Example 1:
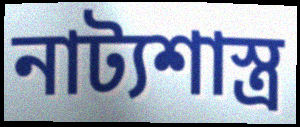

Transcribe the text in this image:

নাট্যশাস্ত্ৰ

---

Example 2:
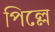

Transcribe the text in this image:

পিল্লে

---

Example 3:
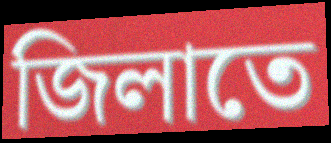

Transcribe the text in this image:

জিলাতে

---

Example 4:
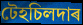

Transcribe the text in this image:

টেহচিলদাৰ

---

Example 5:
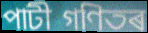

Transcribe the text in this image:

পাটীগণিতৰ